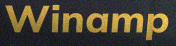
Winamp